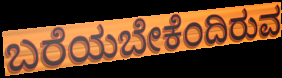
ಬರೆಯಬೇಕೆಂದಿರುವ